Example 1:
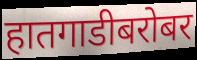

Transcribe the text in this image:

हातगाडीबरोबर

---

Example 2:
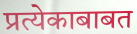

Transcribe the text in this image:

प्रत्येकाबाबत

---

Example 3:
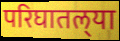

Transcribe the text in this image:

परिघातल्या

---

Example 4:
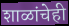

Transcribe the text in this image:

शाळांचेही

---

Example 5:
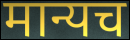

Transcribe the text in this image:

मान्यच